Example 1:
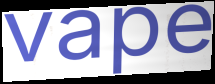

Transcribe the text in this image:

vape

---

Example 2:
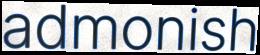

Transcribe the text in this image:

admonish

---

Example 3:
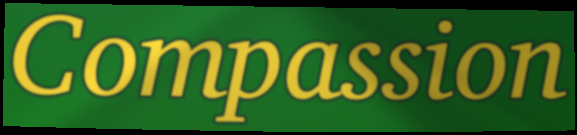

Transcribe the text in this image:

Compassion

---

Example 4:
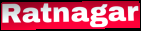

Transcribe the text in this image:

Ratnagar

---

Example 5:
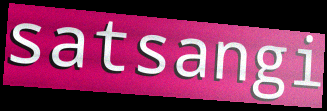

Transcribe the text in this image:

satsangi